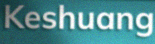
Keshuang